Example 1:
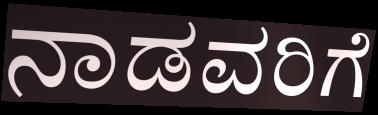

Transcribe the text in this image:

ನಾಡವರಿಗೆ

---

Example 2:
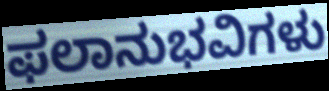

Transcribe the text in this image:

ಫಲಾನುಭವಿಗಳು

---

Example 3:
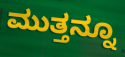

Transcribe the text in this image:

ಮುತ್ತನ್ನೂ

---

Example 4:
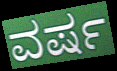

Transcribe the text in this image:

ವರ್ಷ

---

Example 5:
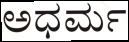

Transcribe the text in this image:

ಅಧರ್ಮ